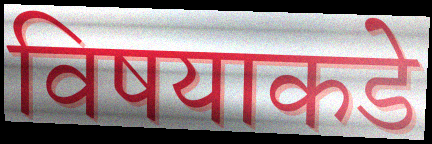
विषयाकडे